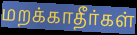
மறக்காதீர்கள்